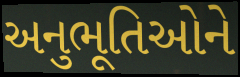
અનુભૂતિઓને